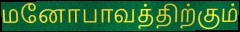
மனோபாவத்திற்கும்